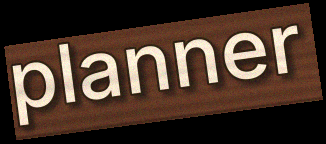
planner